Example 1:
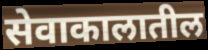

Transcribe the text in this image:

सेवाकालातील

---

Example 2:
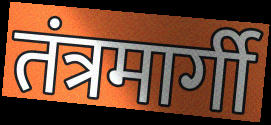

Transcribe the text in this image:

तंत्रमार्गी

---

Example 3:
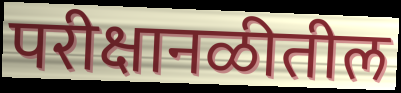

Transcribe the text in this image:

परीक्षानळीतील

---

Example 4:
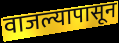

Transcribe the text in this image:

वाजल्यापासून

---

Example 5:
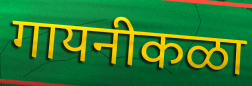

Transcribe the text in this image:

गायनीकळा